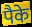
पैके